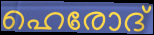
ഹെരോദ്